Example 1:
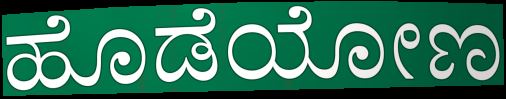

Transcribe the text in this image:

ಹೊಡೆಯೋಣ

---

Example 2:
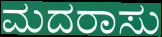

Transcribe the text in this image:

ಮದರಾಸು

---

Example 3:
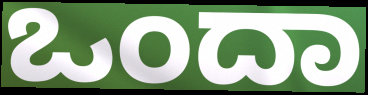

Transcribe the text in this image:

ಒಂದಾ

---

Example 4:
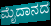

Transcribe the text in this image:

ಮೈದಾನದ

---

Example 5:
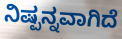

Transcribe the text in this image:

ನಿಷ್ಪನ್ನವಾಗಿದೆ